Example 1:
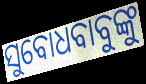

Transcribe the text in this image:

ସୁବୋଧବାବୁଙ୍କୁ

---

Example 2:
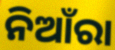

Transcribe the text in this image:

ନିଆଁରା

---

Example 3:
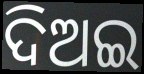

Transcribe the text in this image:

ଦିଅଇ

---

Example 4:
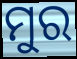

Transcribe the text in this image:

ମୁର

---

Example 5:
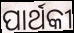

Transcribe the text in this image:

ପାର୍ଥକୀ